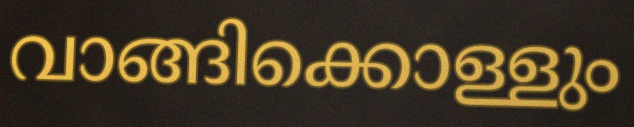
വാങ്ങിക്കൊള്ളും